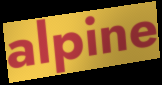
alpine